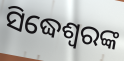
ସିଦ୍ଧେଶ୍ୱରଙ୍କ